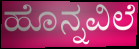
ಹೊನ್ನವಿಲೆ